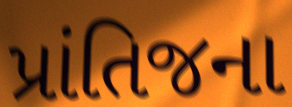
પ્રાંતિજના